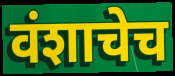
वंशाचेच